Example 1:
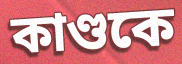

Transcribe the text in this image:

কাণ্ডকে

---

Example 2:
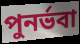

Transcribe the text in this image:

পুনর্ভবা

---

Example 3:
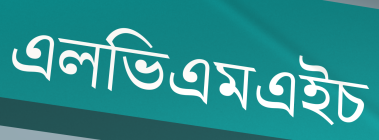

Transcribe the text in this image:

এলভিএমএইচ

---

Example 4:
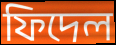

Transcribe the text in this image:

ফিদেল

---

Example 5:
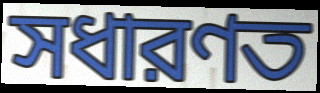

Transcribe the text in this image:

সধারণত